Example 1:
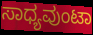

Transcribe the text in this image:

ಸಾಧ್ಯವುಂಟಾ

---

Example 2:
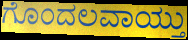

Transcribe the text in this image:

ಗೊಂದಲವಾಯ್ತು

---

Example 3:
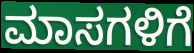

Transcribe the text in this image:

ಮಾಸಗಳಿಗೆ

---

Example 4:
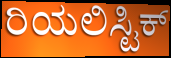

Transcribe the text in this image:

ರಿಯಲಿಸ್ಟಿಕ್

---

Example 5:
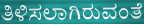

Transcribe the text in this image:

ತಿಳಿಸಲಾಗಿರುವಂತೆ